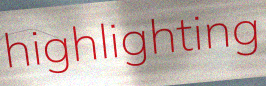
highlighting